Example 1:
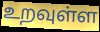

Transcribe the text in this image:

உறவுள்ள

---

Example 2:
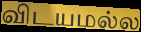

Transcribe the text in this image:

விடயமல்ல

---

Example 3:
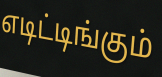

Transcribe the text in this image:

எடிட்டிங்கும்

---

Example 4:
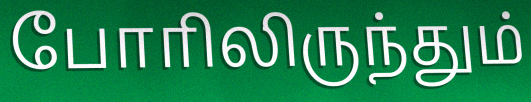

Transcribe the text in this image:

போரிலிருந்தும்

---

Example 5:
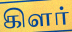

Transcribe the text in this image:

கிளர்